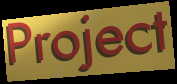
Project